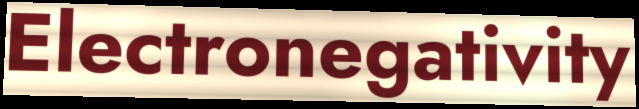
Electronegativity